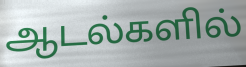
ஆடல்களில்